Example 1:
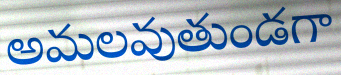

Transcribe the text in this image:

అమలవుతుండగా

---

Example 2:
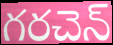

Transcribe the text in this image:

గరచెన్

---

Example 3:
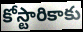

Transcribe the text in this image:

కోస్టారికాకు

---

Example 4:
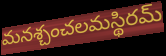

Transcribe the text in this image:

మనశ్చంచలమస్థిరమ్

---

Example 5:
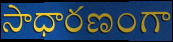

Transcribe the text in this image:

సాధారణంగా